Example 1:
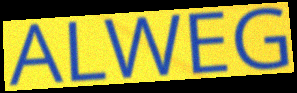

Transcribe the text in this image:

ALWEG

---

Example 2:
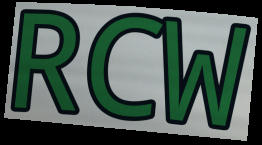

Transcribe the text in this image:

RCW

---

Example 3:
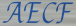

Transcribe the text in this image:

AECF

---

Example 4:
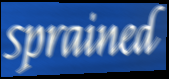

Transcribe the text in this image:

sprained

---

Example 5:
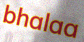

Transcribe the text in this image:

bhalaa